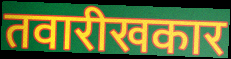
तवारीखकार